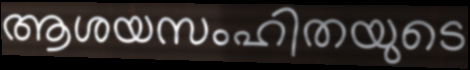
ആശയസംഹിതയുടെ